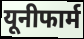
यूनीफार्म